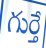
గుర్తే